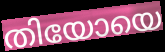
തിയോയെ